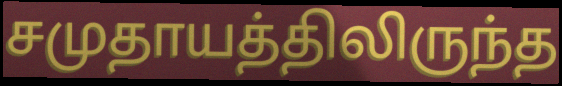
சமுதாயத்திலிருந்த